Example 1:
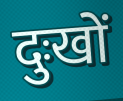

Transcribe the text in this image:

दुःखों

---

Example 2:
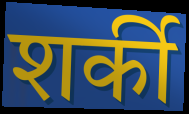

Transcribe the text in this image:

शर्की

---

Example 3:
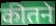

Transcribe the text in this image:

कीतने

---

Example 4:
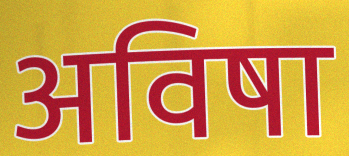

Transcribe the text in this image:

अविषा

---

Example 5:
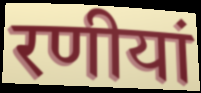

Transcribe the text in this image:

रणीयां